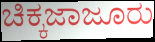
ಚಿಕ್ಕಜಾಜೂರು